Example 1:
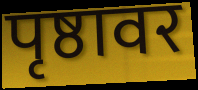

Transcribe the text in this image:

पृष्ठावर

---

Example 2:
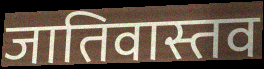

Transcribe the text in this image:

जातिवास्तव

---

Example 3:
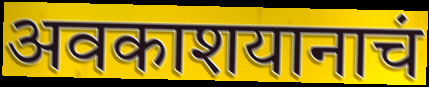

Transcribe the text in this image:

अवकाशयानाचं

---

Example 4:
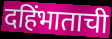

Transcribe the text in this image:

दहिंभाताची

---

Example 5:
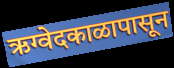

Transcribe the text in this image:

ऋग्वेदकाळापासून